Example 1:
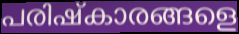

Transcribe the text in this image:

പരിഷ്‌കാരങ്ങളെ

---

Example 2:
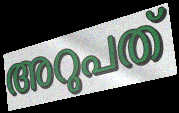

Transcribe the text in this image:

അറുപത്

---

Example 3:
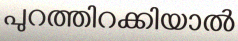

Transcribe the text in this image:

പുറത്തിറക്കിയാൽ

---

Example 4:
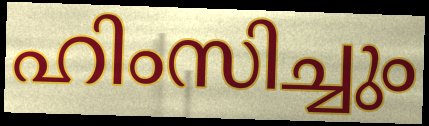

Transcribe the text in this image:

ഹിംസിച്ചും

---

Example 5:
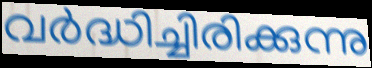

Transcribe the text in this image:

വർദ്ധിച്ചിരിക്കുന്നു